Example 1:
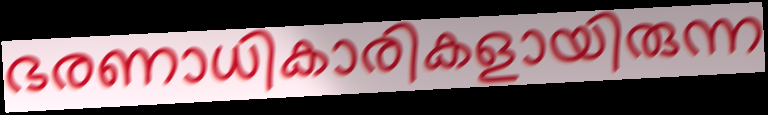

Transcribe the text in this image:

ഭരണാധികാരികളായിരുന്ന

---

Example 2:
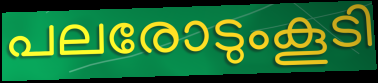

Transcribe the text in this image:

പലരോടുംകൂടി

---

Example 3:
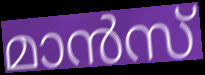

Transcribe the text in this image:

മാൻസ്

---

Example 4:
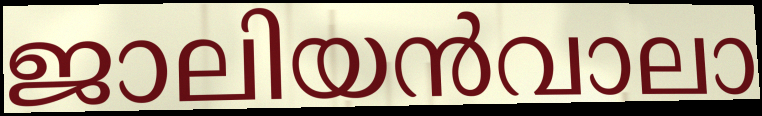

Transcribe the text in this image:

ജാലിയൻവാലാ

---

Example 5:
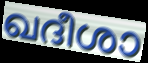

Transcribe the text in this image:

ഖദീശാ